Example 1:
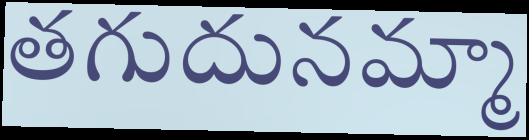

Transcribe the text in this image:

తగుదునమ్మా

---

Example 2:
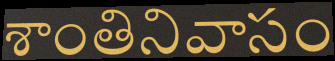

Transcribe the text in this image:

శాంతినివాసం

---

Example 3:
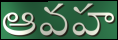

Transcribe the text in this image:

ఆవహ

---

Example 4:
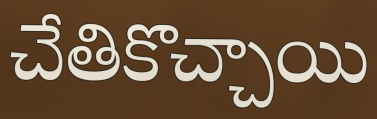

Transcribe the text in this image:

చేతికొచ్చాయి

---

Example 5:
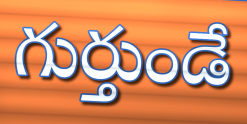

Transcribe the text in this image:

గుర్తుండే